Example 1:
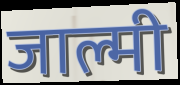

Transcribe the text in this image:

जाल्मी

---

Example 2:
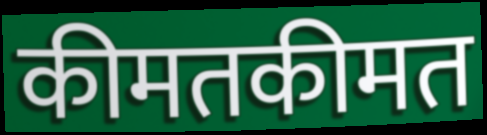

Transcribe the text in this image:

कीमतकीमत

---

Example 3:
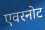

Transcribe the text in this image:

एवरनोट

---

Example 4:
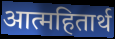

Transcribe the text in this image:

आत्महितार्थ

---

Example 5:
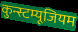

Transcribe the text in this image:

कुन्स्टम्यूजियम